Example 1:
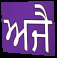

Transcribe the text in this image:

ਅਜੈ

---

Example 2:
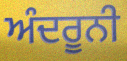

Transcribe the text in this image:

ਅੰਦਰੂਨੀ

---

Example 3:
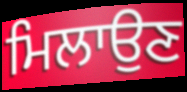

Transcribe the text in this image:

ਮਿਲਾਉਣ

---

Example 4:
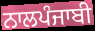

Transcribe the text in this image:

ਨਾਲਪੰਜਾਬੀ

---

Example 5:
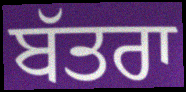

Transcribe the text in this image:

ਬੱਤਰਾ